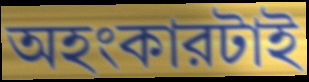
অহংকারটাই